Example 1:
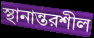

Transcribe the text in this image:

স্থানান্তরশীল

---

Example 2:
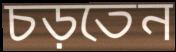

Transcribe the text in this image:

চড়তেন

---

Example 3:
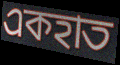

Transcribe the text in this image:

একহাত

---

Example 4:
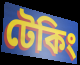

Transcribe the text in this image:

টেকিং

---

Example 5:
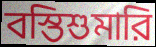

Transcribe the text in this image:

বস্তিশুমারি